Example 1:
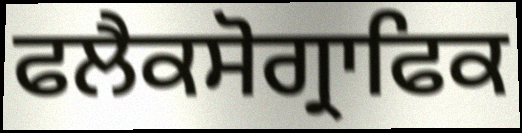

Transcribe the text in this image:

ਫਲੈਕਸੋਗ੍ਰਾਫਿਕ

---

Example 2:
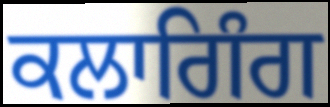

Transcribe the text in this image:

ਕਲਾਗਿੰਗ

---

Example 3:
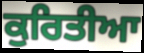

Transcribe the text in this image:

ਕੁਰਿਤੀਆ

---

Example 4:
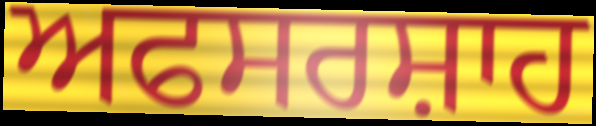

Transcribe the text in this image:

ਅਫਸਰਸ਼ਾਹ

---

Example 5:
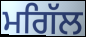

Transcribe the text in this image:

ਮਗਿੱਲ